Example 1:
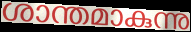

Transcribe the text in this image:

ശാന്തമാകുന്നു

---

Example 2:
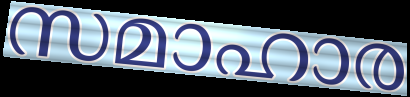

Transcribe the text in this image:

സമാഹാര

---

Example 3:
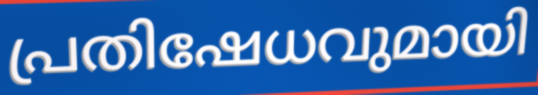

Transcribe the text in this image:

പ്രതിഷേധവുമായി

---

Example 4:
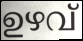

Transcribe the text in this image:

ഉഴവ്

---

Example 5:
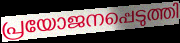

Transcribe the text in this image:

പ്രയോജനപ്പെടുത്തി